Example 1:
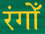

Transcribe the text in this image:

रंगोँ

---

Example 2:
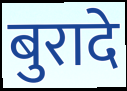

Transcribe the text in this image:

बुरादे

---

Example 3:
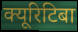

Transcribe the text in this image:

क्यूरिटिबा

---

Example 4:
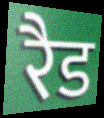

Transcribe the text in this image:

रैड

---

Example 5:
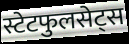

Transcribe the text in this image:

स्टेटफुलसेट्स